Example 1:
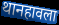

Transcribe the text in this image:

थानहावला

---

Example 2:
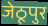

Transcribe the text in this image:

जेठूपुर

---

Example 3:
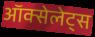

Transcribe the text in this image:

ऑक्सेलेट्स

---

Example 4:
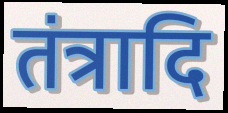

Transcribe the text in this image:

तंत्रादि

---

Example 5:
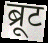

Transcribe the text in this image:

ब्रूट